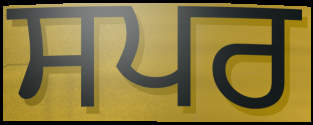
ਸਪਰ